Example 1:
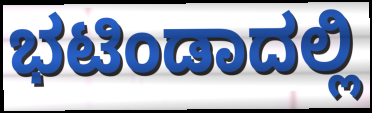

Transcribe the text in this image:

ಭಟಿಂಡಾದಲ್ಲಿ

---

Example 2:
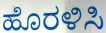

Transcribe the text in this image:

ಹೊರಳಿಸಿ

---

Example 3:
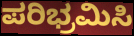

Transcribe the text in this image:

ಪರಿಭ್ರಮಿಸಿ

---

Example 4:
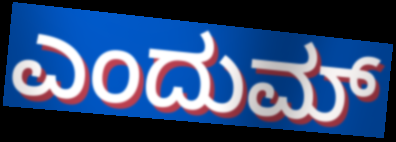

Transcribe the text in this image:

ಎಂದುಮ್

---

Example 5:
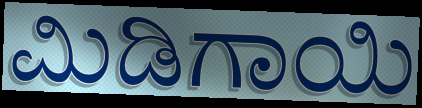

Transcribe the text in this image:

ಮಿಡಿಗಾಯಿ